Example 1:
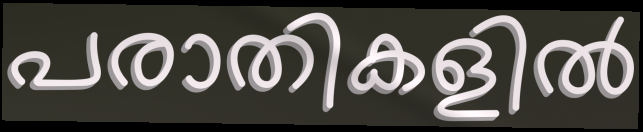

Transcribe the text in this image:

പരാതികളിൽ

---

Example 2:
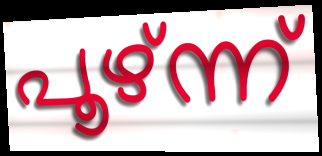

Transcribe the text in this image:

പൂഴ്ന്ന്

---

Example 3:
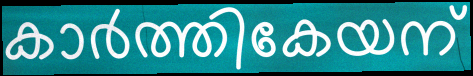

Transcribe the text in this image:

കാർത്തികേയന്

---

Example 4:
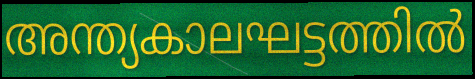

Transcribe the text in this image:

അന്ത്യകാലഘട്ടത്തിൽ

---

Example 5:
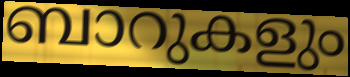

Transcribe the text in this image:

ബാറുകളും